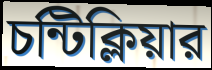
চন্টিক্লিয়ার